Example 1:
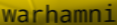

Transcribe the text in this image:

warhamni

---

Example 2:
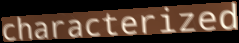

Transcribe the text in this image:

characterized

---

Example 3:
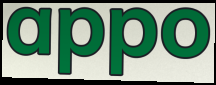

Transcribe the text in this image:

appo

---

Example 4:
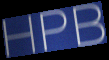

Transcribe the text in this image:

HPB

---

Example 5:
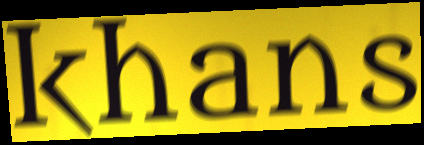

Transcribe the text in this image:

khans